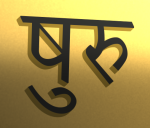
षुरु